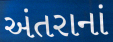
અંતરાનાં